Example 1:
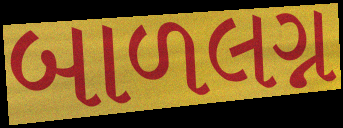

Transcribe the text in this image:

બાળલગ્ન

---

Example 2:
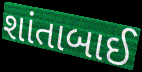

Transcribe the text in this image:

શાંતાબાઈ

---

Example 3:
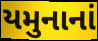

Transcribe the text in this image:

યમુનાનાં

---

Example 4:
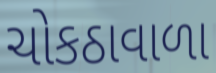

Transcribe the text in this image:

ચોકઠાવાળા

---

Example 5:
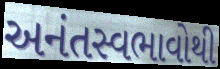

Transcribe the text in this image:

અનંતસ્વભાવોથી